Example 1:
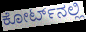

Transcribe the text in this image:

ಕೋರ್ಟ್‌ನಲ್ಲಿ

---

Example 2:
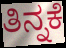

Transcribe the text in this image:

ತಿನ್ನಕೆ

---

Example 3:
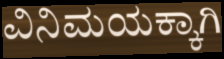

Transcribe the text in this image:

ವಿನಿಮಯಕ್ಕಾಗಿ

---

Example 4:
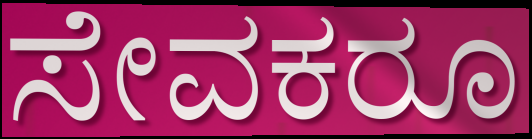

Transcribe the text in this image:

ಸೇವಕರೂ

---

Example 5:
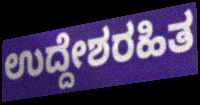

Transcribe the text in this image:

ಉದ್ದೇಶರಹಿತ